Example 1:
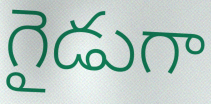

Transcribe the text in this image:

గైడుగా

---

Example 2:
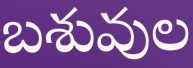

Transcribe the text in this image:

బశువుల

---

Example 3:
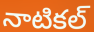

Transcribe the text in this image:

నాటికల్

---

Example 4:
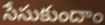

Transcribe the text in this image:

సేసుకుందాం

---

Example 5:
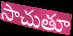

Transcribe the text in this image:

సాచుతూ